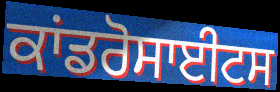
ਕਾਂਡਰੋਸਾਈਟਸ